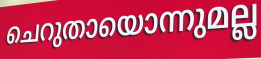
ചെറുതായൊന്നുമല്ല